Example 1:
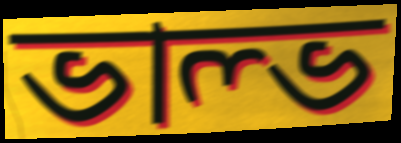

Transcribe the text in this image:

ভাল্ভ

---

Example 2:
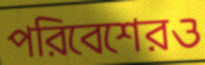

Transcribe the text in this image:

পরিবেশেরও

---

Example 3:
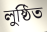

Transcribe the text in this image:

লুষ্ঠিত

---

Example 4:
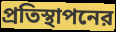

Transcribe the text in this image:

প্রতিস্থাপনের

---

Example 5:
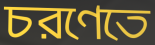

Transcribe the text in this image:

চরণেতে